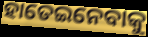
ହାତେଇନେବାକୁ